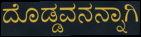
ದೊಡ್ಡವನನ್ನಾಗಿ